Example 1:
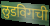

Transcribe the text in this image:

लुडविगची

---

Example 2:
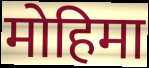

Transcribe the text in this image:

मोहिमा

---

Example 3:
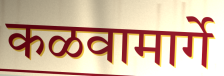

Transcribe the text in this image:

कळवामार्गे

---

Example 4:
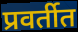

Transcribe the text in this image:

प्रवर्तीत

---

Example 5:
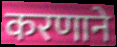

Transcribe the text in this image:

करणाने